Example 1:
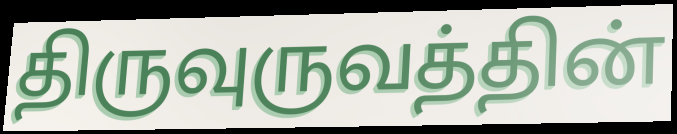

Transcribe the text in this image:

திருவுருவத்தின்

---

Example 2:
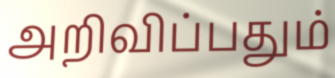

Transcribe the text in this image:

அறிவிப்பதும்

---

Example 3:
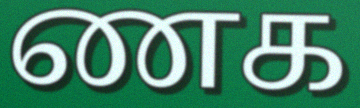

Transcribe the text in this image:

ணக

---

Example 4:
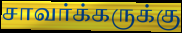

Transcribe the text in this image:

சாவர்க்கருக்கு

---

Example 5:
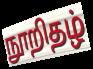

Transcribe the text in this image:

நூறிதழ்